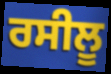
ਰਸੀਲੂ